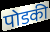
पोडकी